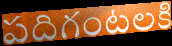
పదిగంటలకి